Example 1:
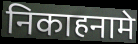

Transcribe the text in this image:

निकाहनामे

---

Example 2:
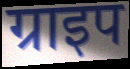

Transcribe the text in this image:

ग्राइप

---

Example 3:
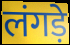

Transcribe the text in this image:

लंगड़े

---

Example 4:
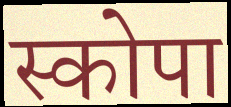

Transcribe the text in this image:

स्कोपा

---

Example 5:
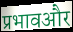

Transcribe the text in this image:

प्रभावऔर